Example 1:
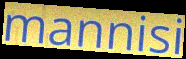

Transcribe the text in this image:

mannisi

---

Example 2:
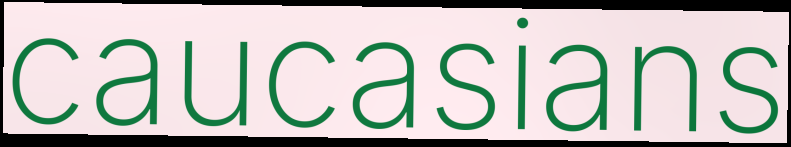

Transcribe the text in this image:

caucasians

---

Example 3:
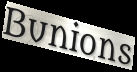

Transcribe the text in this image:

Bunions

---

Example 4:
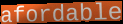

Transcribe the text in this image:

afordable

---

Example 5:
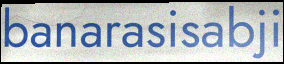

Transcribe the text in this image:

banarasisabji